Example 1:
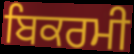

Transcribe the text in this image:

ਬਿਕਰਮੀ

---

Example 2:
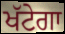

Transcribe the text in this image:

ਖੱਟੇਗਾ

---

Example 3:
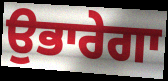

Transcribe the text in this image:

ਉਭਾਰੇਗਾ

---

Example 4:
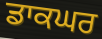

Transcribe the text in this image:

ਡਾਕਘਰ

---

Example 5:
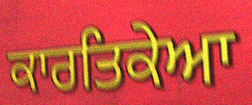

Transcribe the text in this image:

ਕਾਰਤਿਕੇਆ